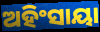
ଅହିଂସାୟା